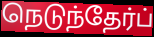
நெடுந்தேர்ப்